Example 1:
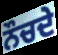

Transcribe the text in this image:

ਨੌਚਦੇ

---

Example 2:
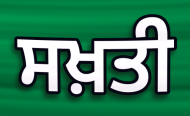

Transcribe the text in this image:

ਸਖ਼ਤੀ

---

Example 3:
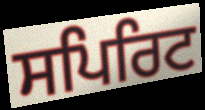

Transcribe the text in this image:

ਸਪਿਰਿਟ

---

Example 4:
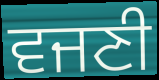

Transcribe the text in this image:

ਵਜਣੀ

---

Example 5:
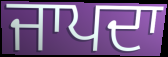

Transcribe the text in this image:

ਜਾਪਦਾ